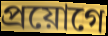
প্রয়োগে